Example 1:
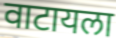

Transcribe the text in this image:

वाटायला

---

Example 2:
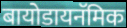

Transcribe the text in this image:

बायोडायनॅमिक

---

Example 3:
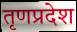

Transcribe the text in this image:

तृणप्रदेश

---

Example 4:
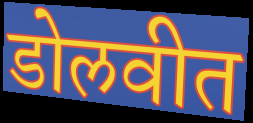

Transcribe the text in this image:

डोलवीत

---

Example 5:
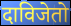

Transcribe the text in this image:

दाविजेतो